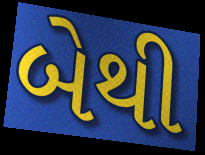
બેથી